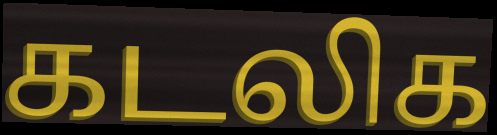
கடலிக